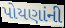
પોયણાંની